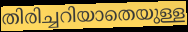
തിരിച്ചറിയാതെയുള്ള